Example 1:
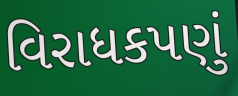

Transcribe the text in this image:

વિરાધકપણું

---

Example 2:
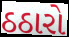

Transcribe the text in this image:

ઠઠારો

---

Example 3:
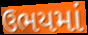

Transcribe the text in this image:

ઉભયમાં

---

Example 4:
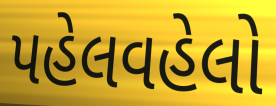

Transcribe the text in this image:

પહેલવહેલો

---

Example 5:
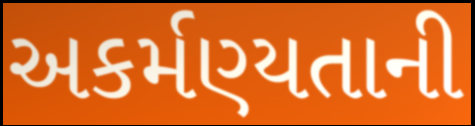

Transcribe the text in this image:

અકર્મણ્યતાની